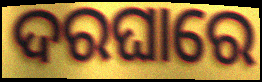
ଦରଘାରେ